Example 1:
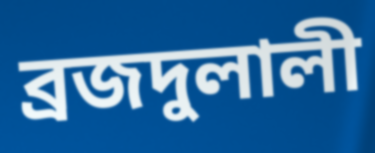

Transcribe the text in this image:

ব্রজদুলালী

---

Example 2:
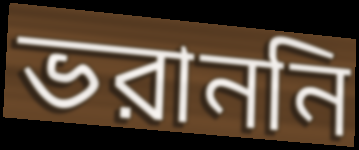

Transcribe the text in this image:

ভরাননি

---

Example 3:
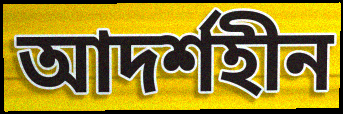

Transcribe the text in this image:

আদর্শহীন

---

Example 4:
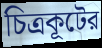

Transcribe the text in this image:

চিত্রকূটের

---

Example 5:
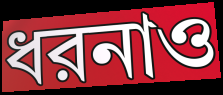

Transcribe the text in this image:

ধরনাও